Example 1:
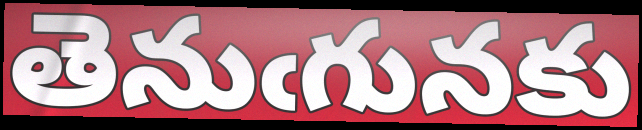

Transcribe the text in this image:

తెనుఁగునకు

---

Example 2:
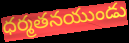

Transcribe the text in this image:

ధర్మతనయుండు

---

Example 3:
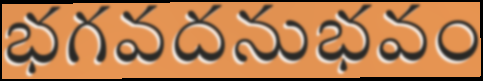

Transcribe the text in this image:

భగవదనుభవం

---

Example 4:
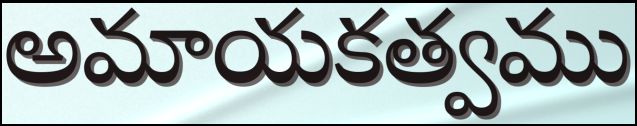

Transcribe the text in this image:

అమాయకత్వము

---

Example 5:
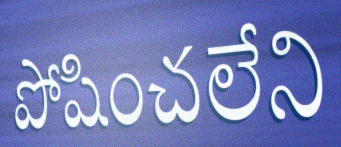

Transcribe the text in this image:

పోషించలేని